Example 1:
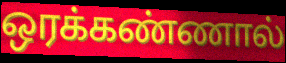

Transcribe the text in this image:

ஒரக்கண்ணால்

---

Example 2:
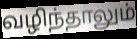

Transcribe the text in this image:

வழிந்தாலும்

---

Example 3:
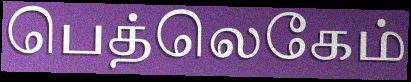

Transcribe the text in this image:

பெத்லெகேம்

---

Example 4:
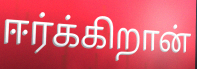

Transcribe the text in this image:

ஈர்க்கிறான்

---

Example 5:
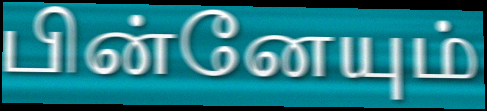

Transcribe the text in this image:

பின்னேயும்